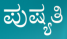
ಪುಷ್ಯತಿ